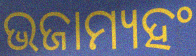
ଭଜାମ୍ୟହଂ